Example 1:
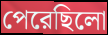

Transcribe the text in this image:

পেরেছিলো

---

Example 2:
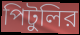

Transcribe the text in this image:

পিটুলির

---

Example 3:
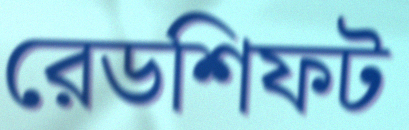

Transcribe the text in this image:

রেডশিফট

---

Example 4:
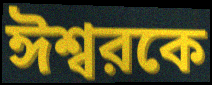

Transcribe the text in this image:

ঈশ্বরকে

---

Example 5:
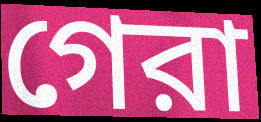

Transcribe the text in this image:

গেরা